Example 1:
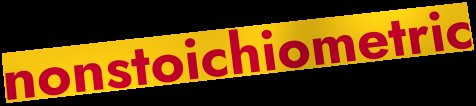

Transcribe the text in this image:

nonstoichiometric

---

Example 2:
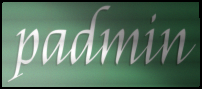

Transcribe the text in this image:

padmin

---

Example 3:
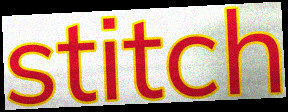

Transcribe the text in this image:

stitch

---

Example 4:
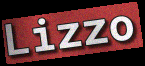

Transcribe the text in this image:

Lizzo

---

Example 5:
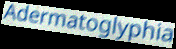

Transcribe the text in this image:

Adermatoglyphia